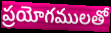
ప్రయోగములతో